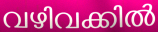
വഴിവക്കിൽ